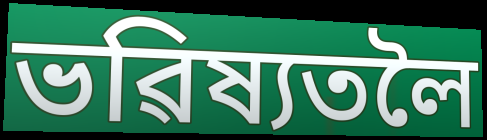
ভৱিষ্যতলৈ